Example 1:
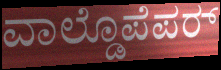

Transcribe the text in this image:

ವಾಲ್ಡೊಪೆಪರ್‍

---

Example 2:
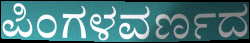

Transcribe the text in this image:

ಪಿಂಗಳವರ್ಣದ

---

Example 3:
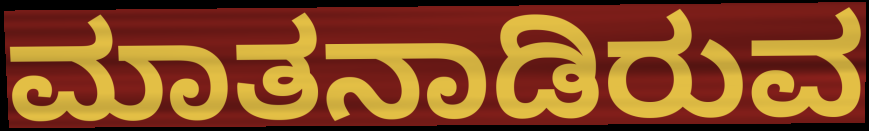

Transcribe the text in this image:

ಮಾತನಾಡಿರುವ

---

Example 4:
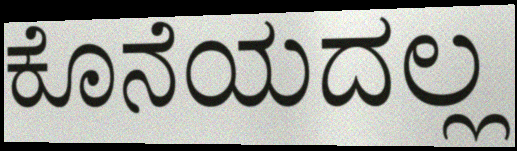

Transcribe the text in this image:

ಕೊನೆಯದಲ್ಲ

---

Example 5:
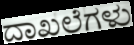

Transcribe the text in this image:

ದಾಖಲೆಗಳು